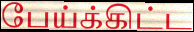
பேய்க்கிட்ட